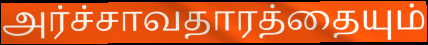
அர்ச்சாவதாரத்தையும்